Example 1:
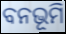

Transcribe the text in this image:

ବନଭୂମି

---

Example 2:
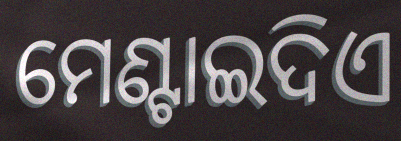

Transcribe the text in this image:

ମେଣ୍ଟାଇଦିଏ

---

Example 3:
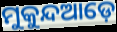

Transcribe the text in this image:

ମୁକୁନ୍ଦଆଡ଼େ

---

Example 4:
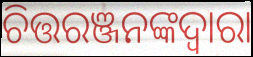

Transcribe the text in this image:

ଚିତ୍ତରଞ୍ଜନଙ୍କଦ୍ଵାରା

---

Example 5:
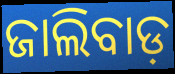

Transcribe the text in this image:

ଜାଲିବାଡ଼